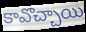
కావొచ్చాయి